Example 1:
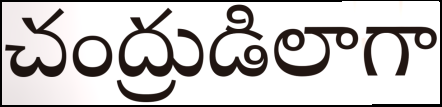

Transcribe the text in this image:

చంద్రుడిలాగా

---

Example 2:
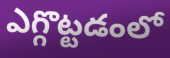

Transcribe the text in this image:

ఎగ్గొట్టడంలో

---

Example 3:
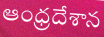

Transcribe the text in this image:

ఆంధ్రదేశాన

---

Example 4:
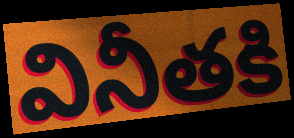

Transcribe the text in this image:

వినీతకి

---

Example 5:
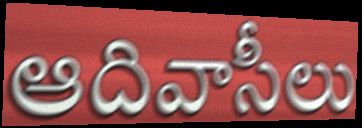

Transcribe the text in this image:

ఆదివాసీలు